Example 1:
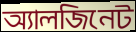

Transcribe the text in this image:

অ্যালজিনেট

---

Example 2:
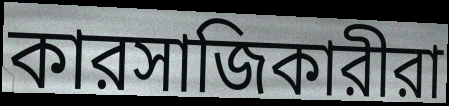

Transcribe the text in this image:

কারসাজিকারীরা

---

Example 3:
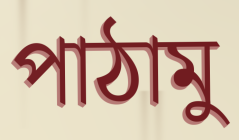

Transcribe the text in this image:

পাঠামু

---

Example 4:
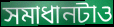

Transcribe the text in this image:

সমাধানটাও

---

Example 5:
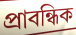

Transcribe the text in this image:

প্রাবন্ধিক